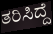
ತರಿಸಿದ್ದೆ